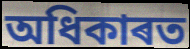
অধিকাৰত